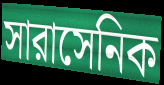
সারাসেনিক